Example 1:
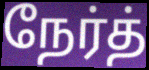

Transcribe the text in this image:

நேர்த்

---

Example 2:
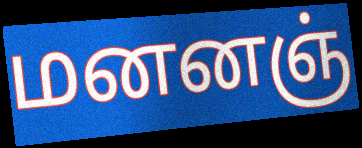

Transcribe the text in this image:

மனனஞ்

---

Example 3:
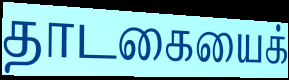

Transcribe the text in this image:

தாடகையைக்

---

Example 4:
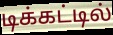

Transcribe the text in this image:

டிக்கட்டில்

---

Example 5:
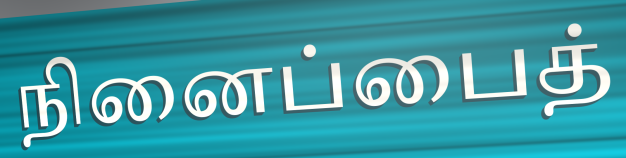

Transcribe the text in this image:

நினைப்பைத்